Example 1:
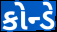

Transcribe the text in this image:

કોન્ડે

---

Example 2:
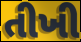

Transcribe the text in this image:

તીખી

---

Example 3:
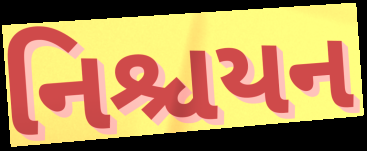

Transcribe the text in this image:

નિશ્ચયન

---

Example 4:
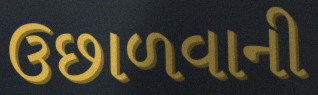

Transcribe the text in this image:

ઉછાળવાની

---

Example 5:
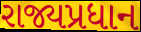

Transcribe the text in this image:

રાજ્યપ્રધાન